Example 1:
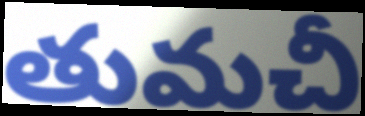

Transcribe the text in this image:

తుమచీ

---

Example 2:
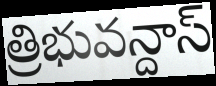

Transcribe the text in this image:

త్రిభువన్దాస్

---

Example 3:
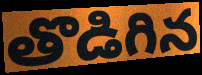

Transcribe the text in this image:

తొడిగిన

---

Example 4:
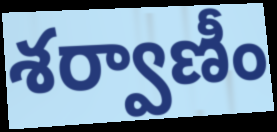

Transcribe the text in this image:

శర్వాణీం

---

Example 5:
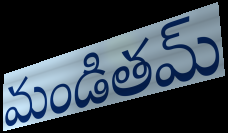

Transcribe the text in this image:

మండితమ్